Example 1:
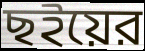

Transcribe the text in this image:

ছইয়ের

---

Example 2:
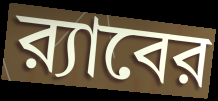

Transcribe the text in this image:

র‍্যাবের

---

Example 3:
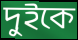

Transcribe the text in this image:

দুইকে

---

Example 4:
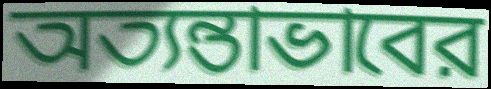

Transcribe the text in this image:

অত্যন্তাভাবের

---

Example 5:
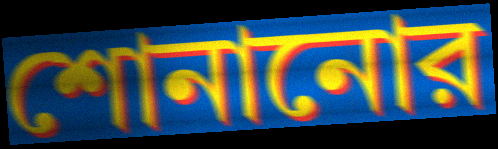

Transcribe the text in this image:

শোনানোর